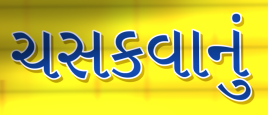
ચસકવાનું